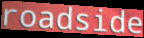
roadside